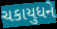
ચકાયુધને